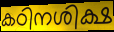
കഠിനശിക്ഷ